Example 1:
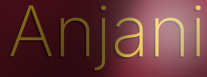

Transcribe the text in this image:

Anjani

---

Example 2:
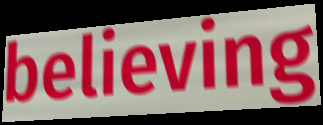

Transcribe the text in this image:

believing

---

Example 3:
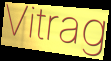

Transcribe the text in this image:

Vitrag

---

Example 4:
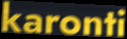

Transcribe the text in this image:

karonti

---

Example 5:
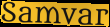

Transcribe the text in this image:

Samvar